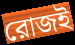
রোজই